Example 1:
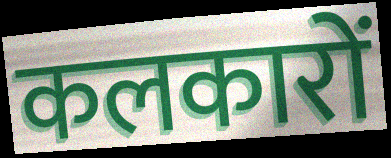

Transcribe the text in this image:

कलकारों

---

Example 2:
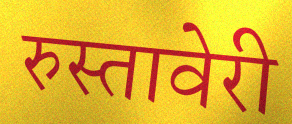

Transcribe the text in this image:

रुस्तावेरी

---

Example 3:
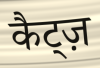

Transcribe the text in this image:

कैट्ज़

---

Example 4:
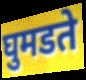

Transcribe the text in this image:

घुमडते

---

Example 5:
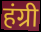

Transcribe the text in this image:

हंग्री